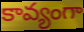
కావ్యంగా